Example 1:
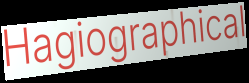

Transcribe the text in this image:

Hagiographical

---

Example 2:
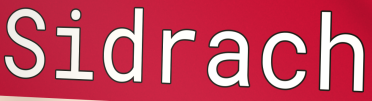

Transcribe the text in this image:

Sidrach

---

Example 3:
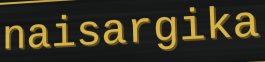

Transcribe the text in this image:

naisargika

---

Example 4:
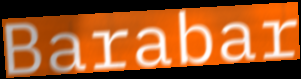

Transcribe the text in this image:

Barabar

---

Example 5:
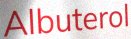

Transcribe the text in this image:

Albuterol